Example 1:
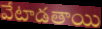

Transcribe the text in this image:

వేటాడతాయి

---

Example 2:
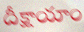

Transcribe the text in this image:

దీక్షాయాం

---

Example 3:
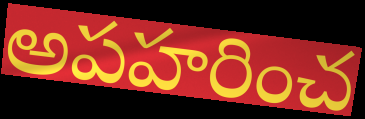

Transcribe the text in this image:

అపహరించ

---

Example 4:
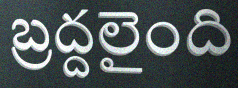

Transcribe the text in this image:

బ్రద్దలైంది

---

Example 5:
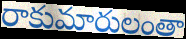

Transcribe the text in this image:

రాకుమారులంతా